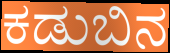
ಕಡುಬಿನ